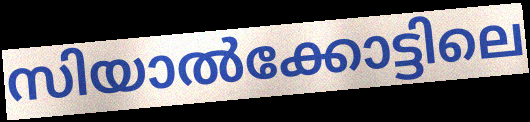
സിയാൽക്കോട്ടിലെ